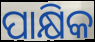
ପାକ୍ଷିକ